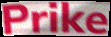
Prike